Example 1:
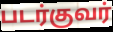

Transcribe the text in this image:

படர்குவர்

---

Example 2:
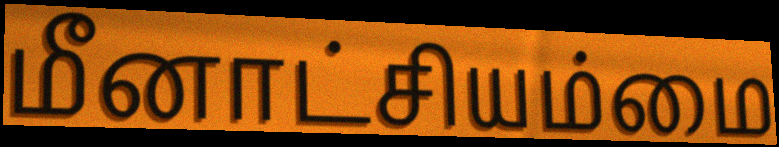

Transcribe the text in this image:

மீனாட்சியம்மை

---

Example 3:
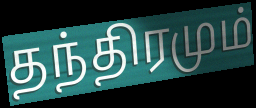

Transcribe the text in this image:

தந்திரமும்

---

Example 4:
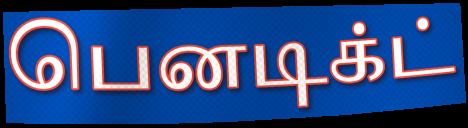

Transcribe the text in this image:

பெனடிக்ட்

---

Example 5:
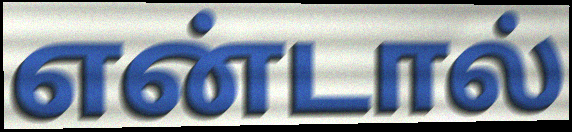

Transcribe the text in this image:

என்டால்